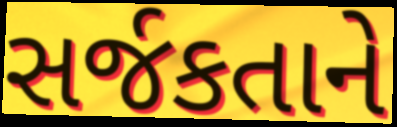
સર્જકતાને